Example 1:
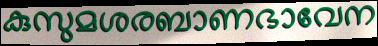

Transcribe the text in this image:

കുസുമശരബാണഭാവേന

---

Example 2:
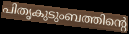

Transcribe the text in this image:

പിതൃകുടുംബത്തിന്റെ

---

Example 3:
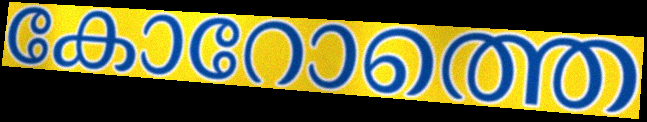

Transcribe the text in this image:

കോറോത്തെ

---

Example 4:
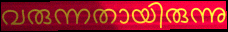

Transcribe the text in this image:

വരുന്നതായിരുന്നു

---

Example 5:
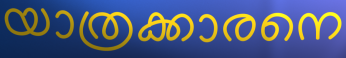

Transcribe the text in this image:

യാത്രക്കാരനെ